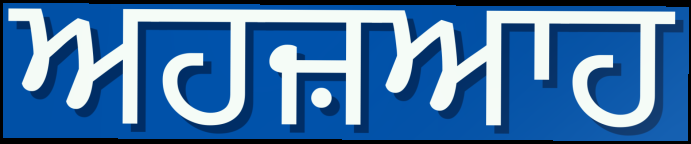
ਅਹਜ਼ਆਹ